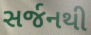
સર્જનથી